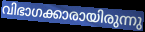
വിഭാഗക്കാരായിരുന്നു